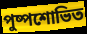
পুষ্পশোভিত